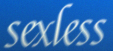
sexless